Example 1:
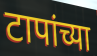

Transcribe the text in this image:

टापांच्या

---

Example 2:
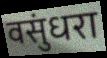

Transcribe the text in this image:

वसुंधरा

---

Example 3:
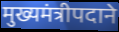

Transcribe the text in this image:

मुख्यमंत्रीपदाने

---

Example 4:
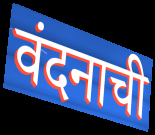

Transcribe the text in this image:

वंदनाची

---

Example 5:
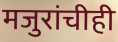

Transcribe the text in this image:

मजुरांचीही